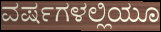
ವರ್ಷಗಳಲ್ಲಿಯೂ